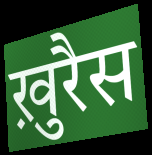
ख़ुरैस